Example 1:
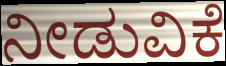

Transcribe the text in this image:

ನೀಡುವಿಕೆ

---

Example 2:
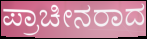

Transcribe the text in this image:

ಪ್ರಾಚೀನರಾದ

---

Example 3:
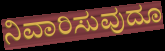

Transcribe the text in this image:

ನಿವಾರಿಸುವುದೂ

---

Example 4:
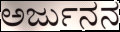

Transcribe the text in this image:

ಅರ್ಜುನನ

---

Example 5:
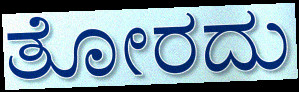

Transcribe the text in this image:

ತೋರದು